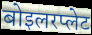
बोइलरप्लेट